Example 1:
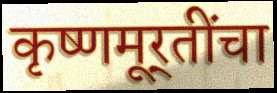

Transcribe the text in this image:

कृष्णमूर्तींचा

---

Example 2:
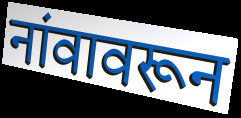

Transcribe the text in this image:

नांवावरून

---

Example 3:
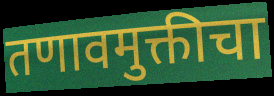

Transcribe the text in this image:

तणावमुक्तीचा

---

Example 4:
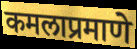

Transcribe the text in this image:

कमलाप्रमाणे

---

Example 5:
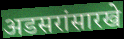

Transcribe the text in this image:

अडसरांसारखे